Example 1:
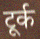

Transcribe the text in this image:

टूर्क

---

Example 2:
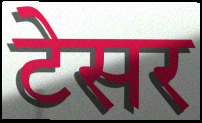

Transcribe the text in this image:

टेसर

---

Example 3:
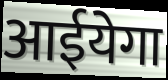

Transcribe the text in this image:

आईयेगा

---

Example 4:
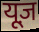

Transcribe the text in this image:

यूज़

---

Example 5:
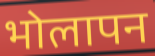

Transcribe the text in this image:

भोलापन